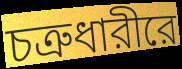
চত্রুধারীরে